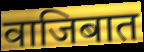
वाजिबात